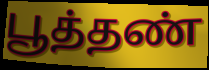
பூத்தண்